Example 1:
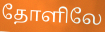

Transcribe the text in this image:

தோளிலே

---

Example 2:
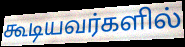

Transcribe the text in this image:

கூடியவர்களில்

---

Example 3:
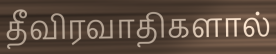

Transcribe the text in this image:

தீவிரவாதிகளால்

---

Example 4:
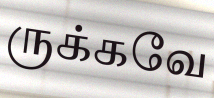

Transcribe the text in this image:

ருக்கவே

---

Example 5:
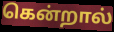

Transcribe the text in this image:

கென்றால்